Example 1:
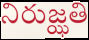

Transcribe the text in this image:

నిరుజ్ఝతి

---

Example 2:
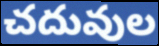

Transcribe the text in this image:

చదువుల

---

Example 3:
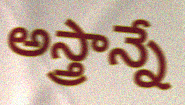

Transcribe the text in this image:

అస్త్రాన్నే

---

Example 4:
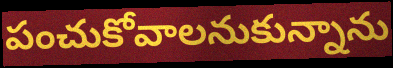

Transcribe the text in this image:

పంచుకోవాలనుకున్నాను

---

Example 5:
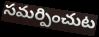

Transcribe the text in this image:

సమర్పించుట